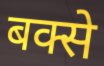
बक्से